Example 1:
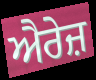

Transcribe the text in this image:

ਐਰੇਜ਼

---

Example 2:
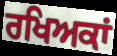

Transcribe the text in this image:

ਰਖਿਅਕਾਂ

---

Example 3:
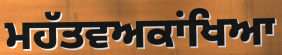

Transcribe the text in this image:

ਮਹੱਤਵਅਕਾਂਖਿਆ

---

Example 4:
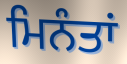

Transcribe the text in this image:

ਮਿਨੰਤਾਂ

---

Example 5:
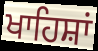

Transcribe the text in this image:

ਖਾਹਿਸ਼ਾਂ